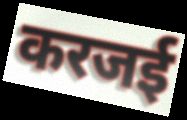
करजई